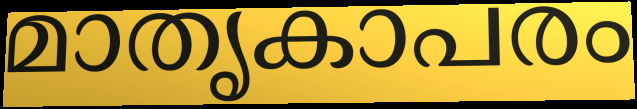
മാതൃകാപരം